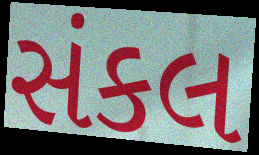
સંકલ